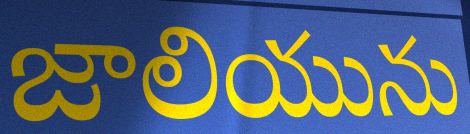
జాలియును